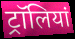
ट्रॉलियां